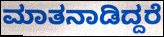
ಮಾತನಾಡಿದ್ದರೆ